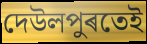
দেউলপুৰতেই